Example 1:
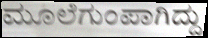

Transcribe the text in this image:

ಮೂಲೆಗುಂಪಾಗಿದ್ದು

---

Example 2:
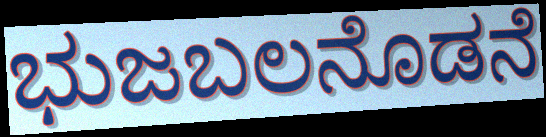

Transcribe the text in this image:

ಭುಜಬಲನೊಡನೆ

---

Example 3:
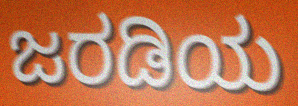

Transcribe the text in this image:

ಜರಡಿಯ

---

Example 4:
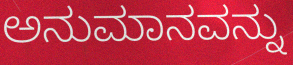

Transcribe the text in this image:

ಅನುಮಾನವನ್ನು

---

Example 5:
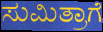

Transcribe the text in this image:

ಸುಮಿತ್ರಾಗೆ